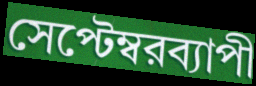
সেপ্টেম্বরব্যাপী